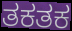
ತಕತಕ